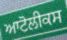
ਆਟੋਲੀਕਸ